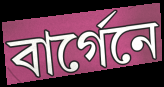
বার্গেনে